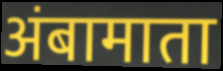
अंबामाता